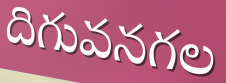
దిగువనగల